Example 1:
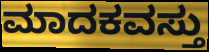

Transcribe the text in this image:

ಮಾದಕವಸ್ತು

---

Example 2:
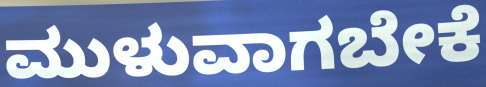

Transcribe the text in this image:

ಮುಳುವಾಗಬೇಕೆ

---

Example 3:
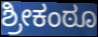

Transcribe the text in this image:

ಶ್ರೀಕಂಠೂ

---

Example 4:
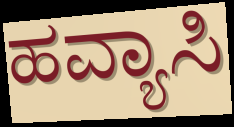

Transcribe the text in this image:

ಹವ್ಯಾಸಿ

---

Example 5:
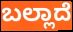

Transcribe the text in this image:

ಬಲ್ಲಾದೆ